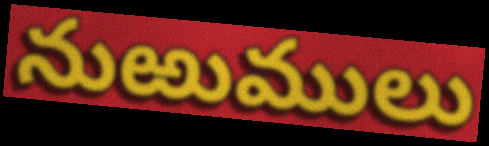
నుఱుములు